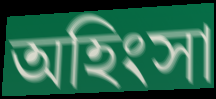
অহিংসা